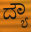
ದ್ಯೌ